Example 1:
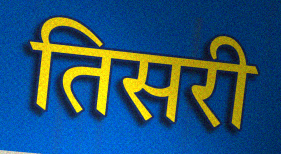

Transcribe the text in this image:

तिसरी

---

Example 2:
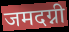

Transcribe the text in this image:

जमदग्नी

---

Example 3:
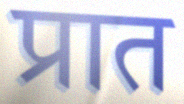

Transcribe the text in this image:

प्रात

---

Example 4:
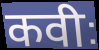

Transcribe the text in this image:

कवीः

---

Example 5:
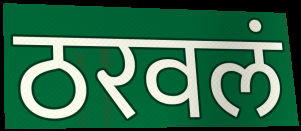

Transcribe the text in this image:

ठरवलं